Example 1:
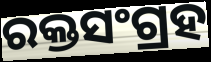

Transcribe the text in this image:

ରକ୍ତସଂଗ୍ରହ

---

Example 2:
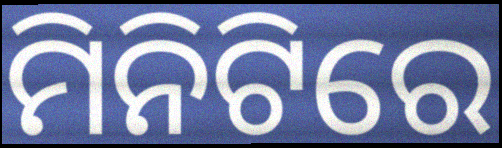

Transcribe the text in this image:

ମିନିଟିରେ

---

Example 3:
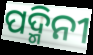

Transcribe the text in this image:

ପଦ୍ମିନୀ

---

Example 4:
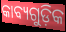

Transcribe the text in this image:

କାବ୍ୟଗୁଡ଼ିକ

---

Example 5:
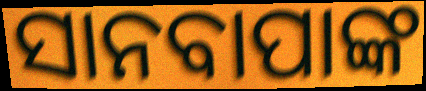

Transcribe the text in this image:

ସାନବାପାଙ୍କ